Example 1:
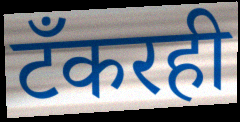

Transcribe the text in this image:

टँकरही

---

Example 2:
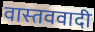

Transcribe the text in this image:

वास्तववादी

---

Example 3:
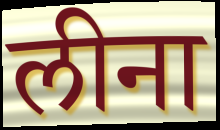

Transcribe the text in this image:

लीना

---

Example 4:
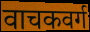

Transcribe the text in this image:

वाचकवर्ग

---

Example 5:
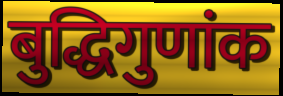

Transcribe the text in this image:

बुद्धिगुणांक